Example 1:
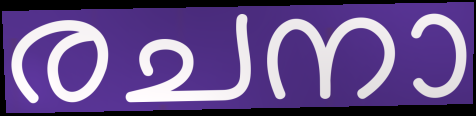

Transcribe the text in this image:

രചനാ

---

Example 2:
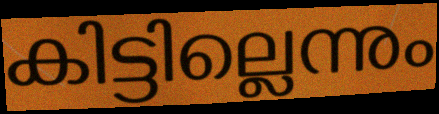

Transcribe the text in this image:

കിട്ടില്ലെന്നും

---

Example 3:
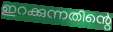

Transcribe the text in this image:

ഇറക്കുന്നതിന്റെ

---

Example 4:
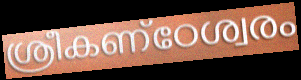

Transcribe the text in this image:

ശ്രീകണ്‌ഠേശ്വരം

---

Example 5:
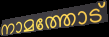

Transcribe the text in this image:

നാമത്തോട്